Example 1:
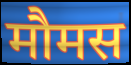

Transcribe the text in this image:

मौमस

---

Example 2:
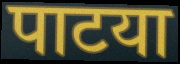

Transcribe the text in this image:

पाटया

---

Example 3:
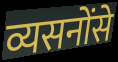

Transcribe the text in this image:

व्यसनोंसे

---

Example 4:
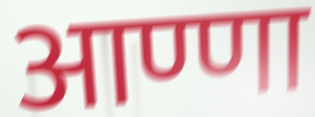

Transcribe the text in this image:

आण्णा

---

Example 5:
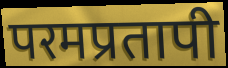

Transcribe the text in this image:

परमप्रतापी